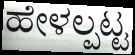
ಹೇಳಲ್ಪಟ್ಟ